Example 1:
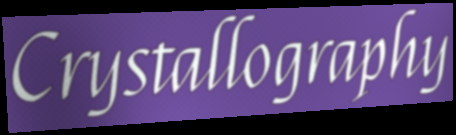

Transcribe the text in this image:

Crystallography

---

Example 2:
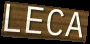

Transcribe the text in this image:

LECA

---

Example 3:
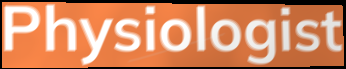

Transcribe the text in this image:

Physiologist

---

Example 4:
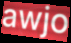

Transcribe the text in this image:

awjo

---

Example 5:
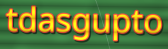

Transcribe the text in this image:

tdasgupto